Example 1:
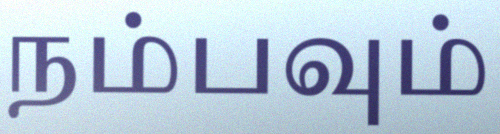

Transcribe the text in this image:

நம்பவும்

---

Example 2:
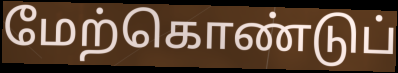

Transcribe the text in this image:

மேற்கொண்டுப்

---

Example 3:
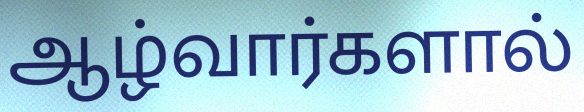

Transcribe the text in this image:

ஆழ்வார்களால்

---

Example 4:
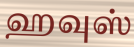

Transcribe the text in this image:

ஹவுஸ்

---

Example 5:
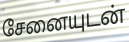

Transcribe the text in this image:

சேனையுடன்